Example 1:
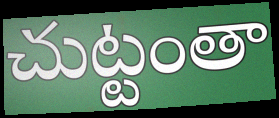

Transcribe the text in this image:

చుట్టంతా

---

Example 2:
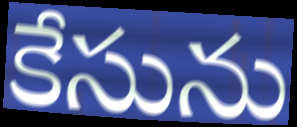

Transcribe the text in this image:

కేసును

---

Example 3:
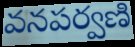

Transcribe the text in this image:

వనపర్వణి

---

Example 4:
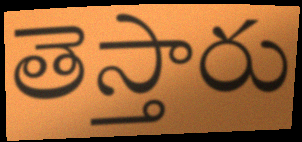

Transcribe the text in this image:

తెస్తారు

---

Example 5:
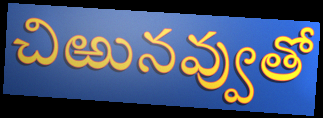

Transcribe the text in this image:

చిఱునవ్వుతో